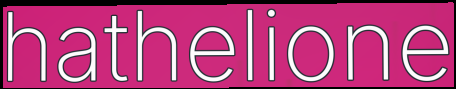
hathelione